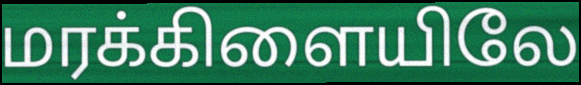
மரக்கிளையிலே